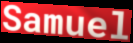
Samuel